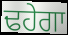
ਢਹੇਗਾ